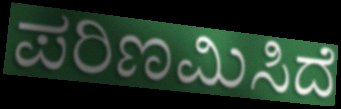
ಪರಿಣಮಿಸಿದೆ